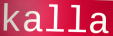
kalla